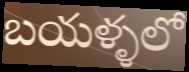
బయళ్ళలో